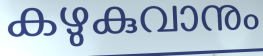
കഴുകുവാനും